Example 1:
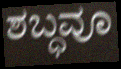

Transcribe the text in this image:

ಶಬ್ಧವೂ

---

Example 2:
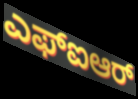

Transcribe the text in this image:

ಎಫ್ಐಆರ್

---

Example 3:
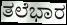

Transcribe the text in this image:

ತಲೆಭಾರ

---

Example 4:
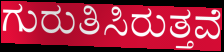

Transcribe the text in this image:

ಗುರುತಿಸಿರುತ್ತವೆ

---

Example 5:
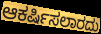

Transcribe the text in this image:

ಆಕರ್ಷಿಸಲಾರದು